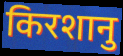
किरशानु